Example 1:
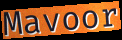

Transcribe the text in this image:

Mavoor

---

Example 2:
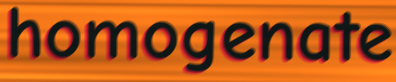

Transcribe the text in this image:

homogenate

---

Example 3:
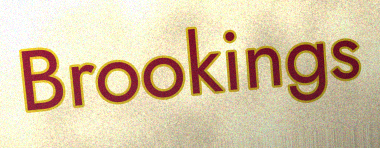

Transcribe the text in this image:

Brookings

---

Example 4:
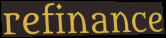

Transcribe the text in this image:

refinance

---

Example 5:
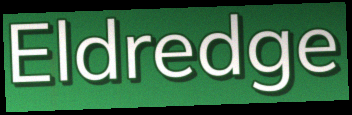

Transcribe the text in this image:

Eldredge